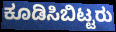
ಕೂಡಿಸಿಬಿಟ್ಟರು